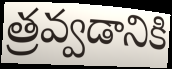
త్రవ్వడానికి